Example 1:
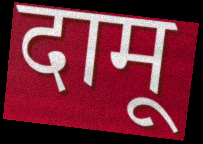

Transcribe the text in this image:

दामू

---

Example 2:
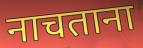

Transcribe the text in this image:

नाचताना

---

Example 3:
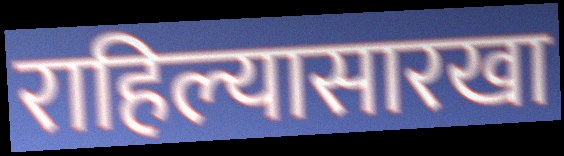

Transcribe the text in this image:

राहिल्यासारखा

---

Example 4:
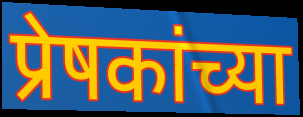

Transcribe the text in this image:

प्रेषकांच्या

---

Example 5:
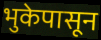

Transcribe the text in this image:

भुकेपासून